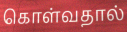
கொள்வதால்